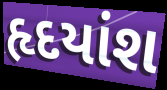
હૃદયાંશ